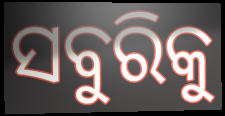
ସବୁରିକୁ